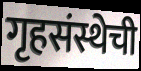
गृहसंस्थेची